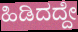
ಹಿಡಿದದ್ದೇ